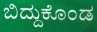
ಬಿದ್ದುಕೊಂಡ